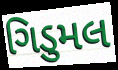
ગિડુમલ